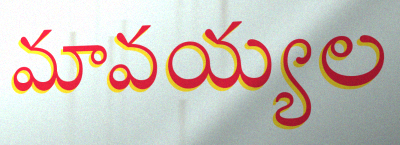
మావయ్యల